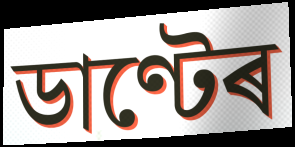
ডাণ্টেৰ